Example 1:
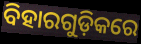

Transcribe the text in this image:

ବିହାରଗୁଡ଼ିକରେ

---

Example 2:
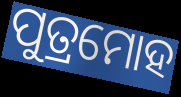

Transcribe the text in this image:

ପୁତ୍ରମୋହ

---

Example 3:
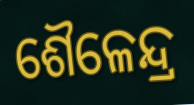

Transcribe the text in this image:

ଶୈଳେନ୍ଦ୍ର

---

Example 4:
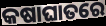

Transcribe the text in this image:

କଷାଘାତରେ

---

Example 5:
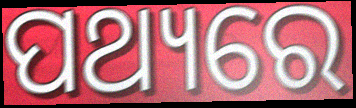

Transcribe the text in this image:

ପଥ୍ୟରେ